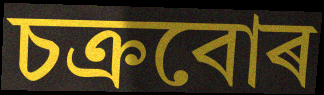
চক্ৰবোৰ